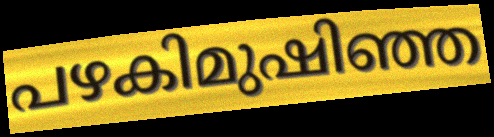
പഴകിമുഷിഞ്ഞ